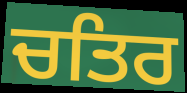
ਚਤਿਰ